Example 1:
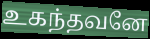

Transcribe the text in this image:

உகந்தவனே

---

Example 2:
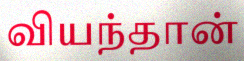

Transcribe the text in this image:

வியந்தான்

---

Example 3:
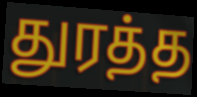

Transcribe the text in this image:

துரத்த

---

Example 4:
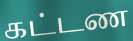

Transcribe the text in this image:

கட்டண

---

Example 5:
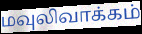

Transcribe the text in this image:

மவுலிவாக்கம்